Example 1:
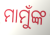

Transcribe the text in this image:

ମାମୁଁଙ୍କ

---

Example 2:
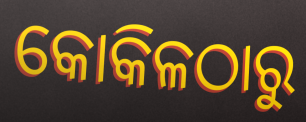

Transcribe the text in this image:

କୋକିଳଠାରୁ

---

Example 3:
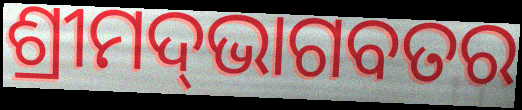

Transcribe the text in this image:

ଶ୍ରୀମଦ୍‌ଭାଗବତର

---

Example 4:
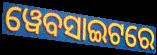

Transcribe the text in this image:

ୱେବସାଇଟରେ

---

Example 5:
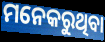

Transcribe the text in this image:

ମନେକରୁଥିବା